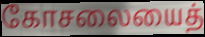
கோசலையைத்